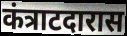
कंत्राटदारास